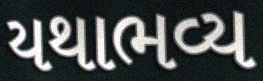
યથાભવ્ય